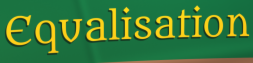
Equalisation